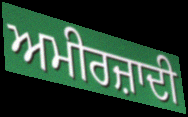
ਅਮੀਰਜ਼ਾਦੀ